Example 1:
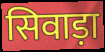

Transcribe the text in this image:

सिवाड़ा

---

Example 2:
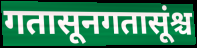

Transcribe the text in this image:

गतासूनगतासूंश्च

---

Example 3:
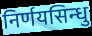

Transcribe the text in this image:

निर्णयसिन्धु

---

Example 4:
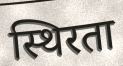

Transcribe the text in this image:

स्थिरता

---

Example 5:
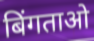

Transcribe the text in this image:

बिंगताओ